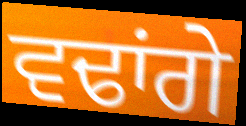
ਵਢਾਂਗੇ